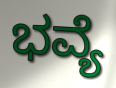
ಭವ್ಯೆ